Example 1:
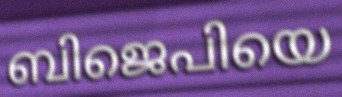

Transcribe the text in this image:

ബിജെപിയെ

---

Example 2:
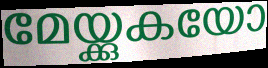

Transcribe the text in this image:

മേയ്ക്കുകയോ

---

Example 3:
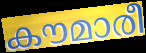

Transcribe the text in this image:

കൗമാരീ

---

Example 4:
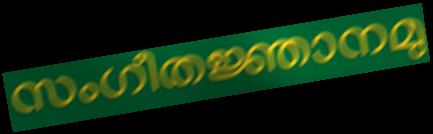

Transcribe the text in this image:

സംഗീതജ്ഞാനമു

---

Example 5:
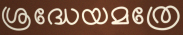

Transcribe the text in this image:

ശ്രദ്ധേയമത്രേ